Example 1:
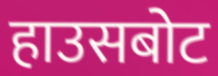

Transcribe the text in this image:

हाउसबोट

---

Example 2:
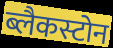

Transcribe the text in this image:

ब्‍लैकस्‍टोन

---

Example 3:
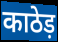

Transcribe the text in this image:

काठेड़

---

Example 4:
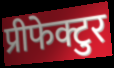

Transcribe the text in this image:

प्रीफेक्टुर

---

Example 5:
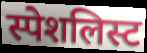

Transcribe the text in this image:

स्पेशलिस्ट